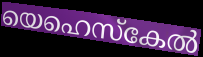
യെഹെസ്കേൽ